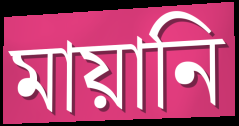
মায়ানি